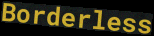
Borderless